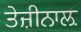
ਤੇਜ਼ੀਨਾਲ਼